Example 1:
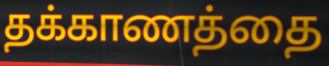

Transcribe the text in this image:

தக்காணத்தை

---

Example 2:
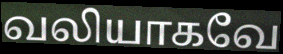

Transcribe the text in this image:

வலியாகவே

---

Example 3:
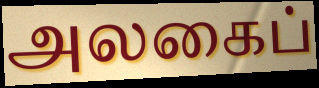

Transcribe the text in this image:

அலகைப்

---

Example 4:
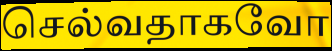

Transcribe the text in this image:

செல்வதாகவோ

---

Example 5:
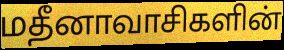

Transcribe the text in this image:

மதீனாவாசிகளின்